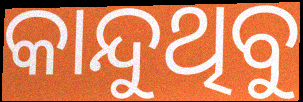
କାନ୍ଦୁଥିବୁ